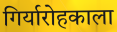
गिर्यारोहकाला